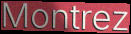
Montrez